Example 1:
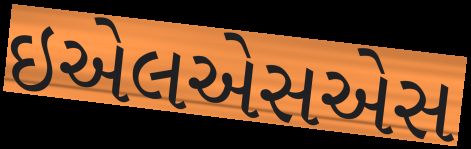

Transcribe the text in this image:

ઇએલએસએસ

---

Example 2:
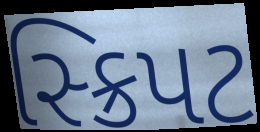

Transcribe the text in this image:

સ્ક્રિપટ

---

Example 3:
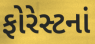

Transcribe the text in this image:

ફોરેસ્ટનાં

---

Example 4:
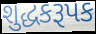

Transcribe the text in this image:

શુદ્ધકરૂપક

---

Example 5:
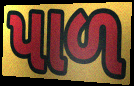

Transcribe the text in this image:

પાળ